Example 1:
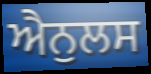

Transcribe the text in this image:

ਐਨੁਲਸ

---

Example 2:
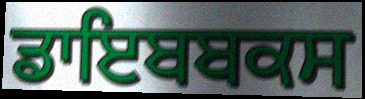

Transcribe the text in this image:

ਡਾਇਬਬਕਸ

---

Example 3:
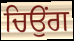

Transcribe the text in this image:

ਚਿਉਂਗ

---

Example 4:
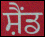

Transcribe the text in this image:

ਸ਼ੈਂਡ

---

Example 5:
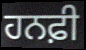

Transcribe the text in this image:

ਹਨਫ਼ੀ